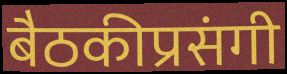
बैठकीप्रसंगी